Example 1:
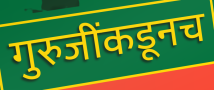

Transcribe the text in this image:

गुरुजींकडूनच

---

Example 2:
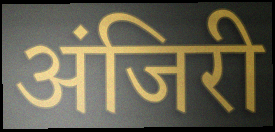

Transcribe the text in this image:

अंजिरी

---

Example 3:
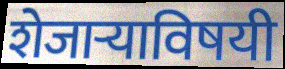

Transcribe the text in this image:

शेजाऱ्याविषयी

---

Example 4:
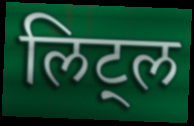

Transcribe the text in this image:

लिट्‌ल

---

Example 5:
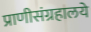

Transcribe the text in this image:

प्राणीसंग्रहालये